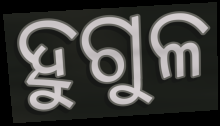
ହୁଗୁଳ